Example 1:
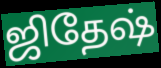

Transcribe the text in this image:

ஜிதேஷ்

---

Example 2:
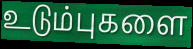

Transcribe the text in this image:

உடும்புகளை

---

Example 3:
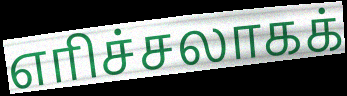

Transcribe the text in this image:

எரிச்சலாகக்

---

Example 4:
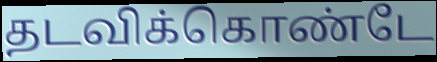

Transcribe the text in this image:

தடவிக்கொண்டே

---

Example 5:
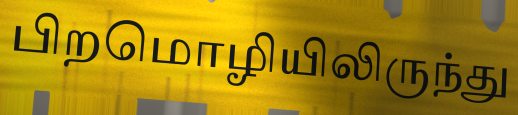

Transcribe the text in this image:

பிறமொழியிலிருந்து